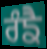
ਰੰਙੈ